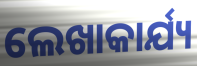
ଲେଖାକାର୍ଯ୍ୟ